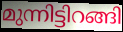
മുന്നിട്ടിറങ്ങി